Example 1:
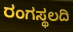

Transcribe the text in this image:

ರಂಗಸ್ಥಲದಿ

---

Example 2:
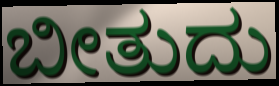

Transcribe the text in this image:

ಬೀತುದು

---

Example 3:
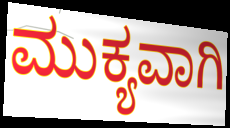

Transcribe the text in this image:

ಮುಕ್ಯವಾಗಿ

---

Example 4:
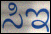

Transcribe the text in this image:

ಸಿಇ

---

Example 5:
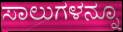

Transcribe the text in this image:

ಸಾಲುಗಳನ್ನೂ